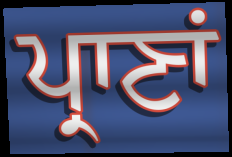
ਪ੍ਰਾਣਾਂ